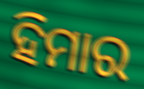
ହିମାର